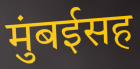
मुंबईसह